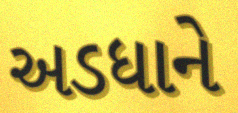
અડધાને